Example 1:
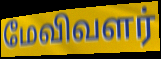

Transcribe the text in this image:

மேவிவளர்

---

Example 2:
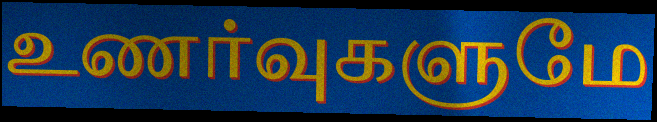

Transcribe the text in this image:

உணர்வுகளுமே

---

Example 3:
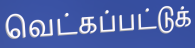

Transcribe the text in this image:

வெட்கப்பட்டுக்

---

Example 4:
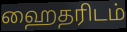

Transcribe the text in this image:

ஹைதரிடம்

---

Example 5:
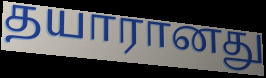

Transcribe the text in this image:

தயாரானது